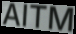
AITM